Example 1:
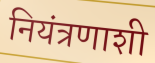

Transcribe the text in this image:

नियंत्रणाशी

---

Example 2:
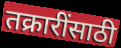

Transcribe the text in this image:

तक्रारींसाठी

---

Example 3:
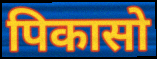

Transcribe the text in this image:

पिकासो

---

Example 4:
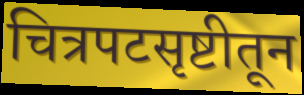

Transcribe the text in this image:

चित्रपटसृष्टीतून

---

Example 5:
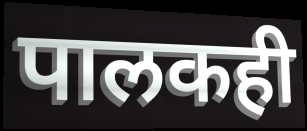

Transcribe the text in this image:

पालकही